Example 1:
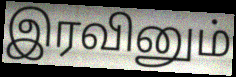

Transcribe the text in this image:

இரவினும்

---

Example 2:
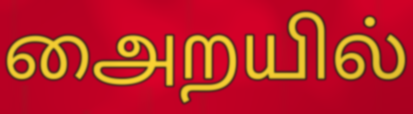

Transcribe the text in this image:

அைறயில்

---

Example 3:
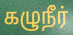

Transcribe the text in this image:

கழுநீர்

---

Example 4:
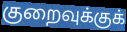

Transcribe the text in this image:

குறைவுக்குக்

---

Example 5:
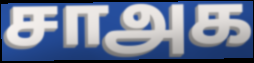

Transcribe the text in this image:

சாஅக